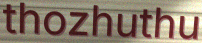
thozhuthu